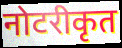
नोटरीकृत